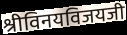
श्रीविनयविजयजी